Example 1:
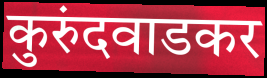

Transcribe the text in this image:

कुरुंदवाडकर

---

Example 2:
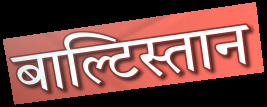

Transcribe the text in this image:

बाल्टिस्तान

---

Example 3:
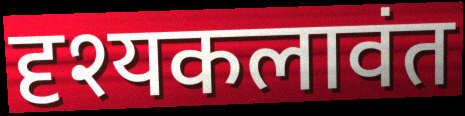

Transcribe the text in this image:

दृश्यकलावंत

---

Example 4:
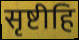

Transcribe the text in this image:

सृष्टीहि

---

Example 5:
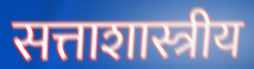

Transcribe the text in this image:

सत्ताशास्त्रीय